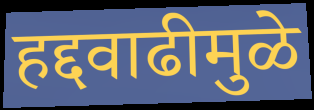
हद्दवाढीमुळे